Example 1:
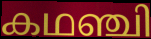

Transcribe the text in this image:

കഥഞ്ചി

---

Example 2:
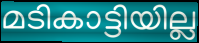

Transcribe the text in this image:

മടികാട്ടിയില്ല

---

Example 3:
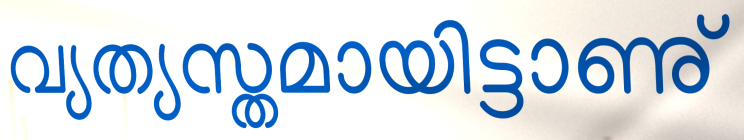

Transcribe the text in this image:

വ്യത്യസ്തമായിട്ടാണു്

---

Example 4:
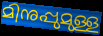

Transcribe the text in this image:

മിനുപ്പുമുള്ള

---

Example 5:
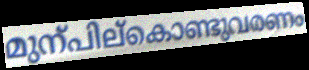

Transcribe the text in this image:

മുന്പില്കൊണ്ടുവരണം